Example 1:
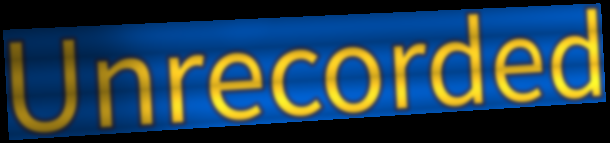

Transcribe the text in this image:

Unrecorded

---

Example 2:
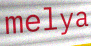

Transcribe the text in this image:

melya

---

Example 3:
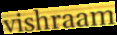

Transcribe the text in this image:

vishraam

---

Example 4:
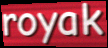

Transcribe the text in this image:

royak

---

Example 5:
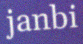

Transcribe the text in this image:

janbi